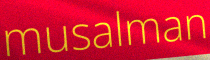
musalman